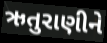
ઋતુરાણીને